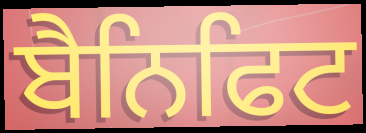
ਬੈਨਿਫਿਟ